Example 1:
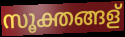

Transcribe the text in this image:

സൂക്തങ്ങള്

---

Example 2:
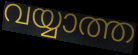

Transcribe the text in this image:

വയ്യാത്ത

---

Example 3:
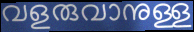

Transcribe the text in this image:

വളരുവാനുള്ള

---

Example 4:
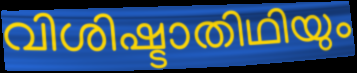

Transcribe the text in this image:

വിശിഷ്ടാതിഥിയും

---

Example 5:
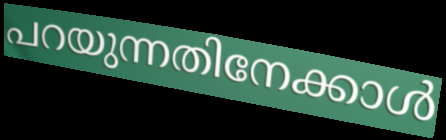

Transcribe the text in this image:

പറയുന്നതിനേക്കാൾ